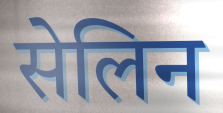
सेलिन